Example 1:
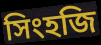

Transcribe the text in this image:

সিংহজি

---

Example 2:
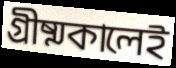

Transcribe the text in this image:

গ্রীষ্মকালেই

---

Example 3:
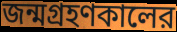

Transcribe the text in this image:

জন্মগ্রহণকালের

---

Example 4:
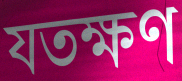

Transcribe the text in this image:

যতক্ষণ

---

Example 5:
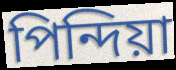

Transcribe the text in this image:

পিন্দিয়া